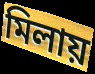
মিলায়